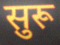
सुरू